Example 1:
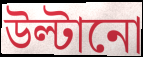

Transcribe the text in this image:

উল্টানো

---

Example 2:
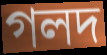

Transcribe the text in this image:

গলদ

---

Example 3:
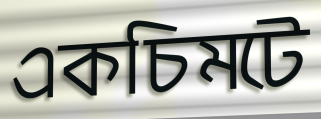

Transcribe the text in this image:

একচিমটে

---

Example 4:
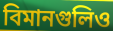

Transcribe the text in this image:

বিমানগুলিও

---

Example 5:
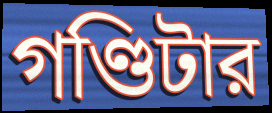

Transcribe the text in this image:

গণ্ডিটার